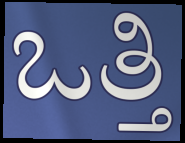
ಒತ್ತಿ